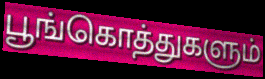
பூங்கொத்துகளும்